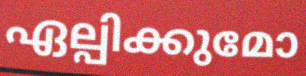
ഏല്പിക്കുമോ